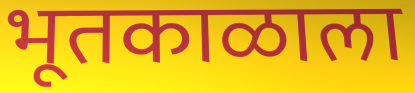
भूतकाळाला